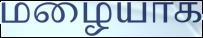
மழையாக